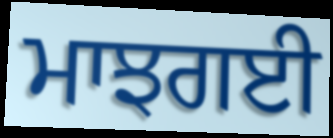
ਮਾਝਗਈ